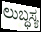
ಲುಬ್ಧಸ್ಯ